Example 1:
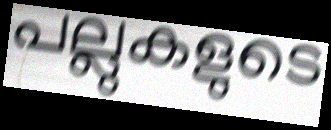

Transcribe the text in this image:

പല്ലുകളുടെ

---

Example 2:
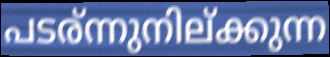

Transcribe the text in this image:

പടര്ന്നുനില്ക്കുന്ന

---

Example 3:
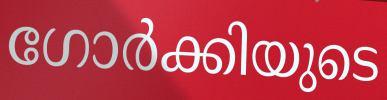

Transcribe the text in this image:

ഗോർക്കിയുടെ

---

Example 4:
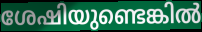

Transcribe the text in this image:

ശേഷിയുണ്ടെങ്കിൽ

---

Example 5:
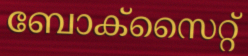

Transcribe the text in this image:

ബോക്സൈറ്റ്